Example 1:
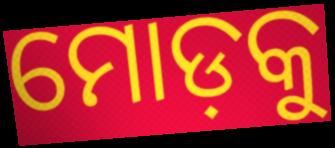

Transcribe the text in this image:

ମୋଡ଼କୁ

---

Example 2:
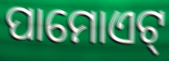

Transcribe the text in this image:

ପାମୋଏଟ୍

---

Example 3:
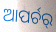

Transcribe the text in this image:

ଆପର୍ଚର୍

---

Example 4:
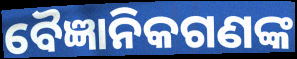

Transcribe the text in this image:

ବୈଜ୍ଞାନିକଗଣଙ୍କ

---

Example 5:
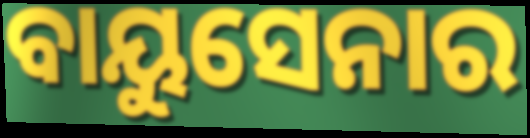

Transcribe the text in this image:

ବାୟୁସେନାର